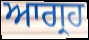
ਆਗ੍ਰਹ